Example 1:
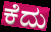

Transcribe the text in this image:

ಕೆದು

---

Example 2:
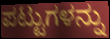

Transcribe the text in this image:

ಪಟ್ಟುಗಳನ್ನು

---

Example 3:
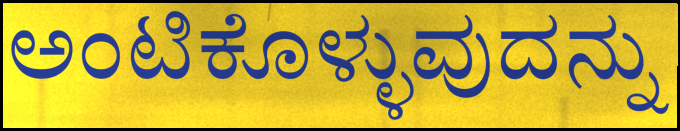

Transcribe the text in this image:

ಅಂಟಿಕೊಳ್ಳುವುದನ್ನು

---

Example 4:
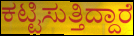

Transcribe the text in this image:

ಕಟ್ಟಿಸುತ್ತಿದ್ದಾರೆ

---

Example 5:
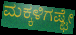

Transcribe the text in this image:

ಮಕ್ಕಳಿಗಷ್ಟೇ